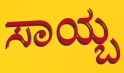
ಸಾಯ್ಬ